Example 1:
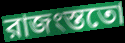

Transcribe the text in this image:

রাজংস্ততো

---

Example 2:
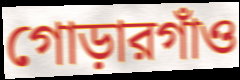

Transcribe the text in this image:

গোড়ারগাঁও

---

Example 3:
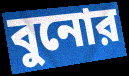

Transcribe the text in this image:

বুনোর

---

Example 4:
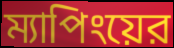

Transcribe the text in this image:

ম্যাপিংয়ের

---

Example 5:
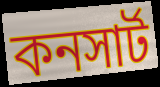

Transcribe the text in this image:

কনসার্ট